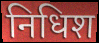
निधिश